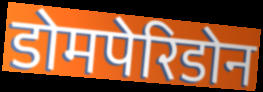
डोमपेरिडोन